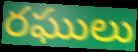
రఘులు